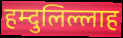
हम्दुलिल्लाह